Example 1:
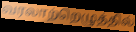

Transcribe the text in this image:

வரலாற்றெழுத்தில்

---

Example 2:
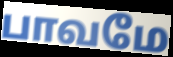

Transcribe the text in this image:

பாவமே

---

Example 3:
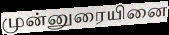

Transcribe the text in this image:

முன்னுரையினை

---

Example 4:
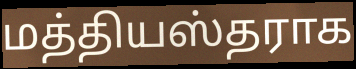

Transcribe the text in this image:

மத்தியஸ்தராக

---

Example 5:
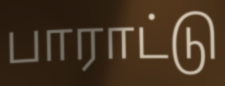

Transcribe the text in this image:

பாராட்டு